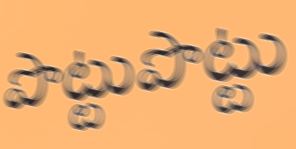
పొట్టుపొట్టు